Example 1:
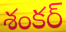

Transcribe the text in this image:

శంకర్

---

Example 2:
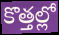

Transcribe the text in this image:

కొత్తల్లో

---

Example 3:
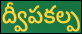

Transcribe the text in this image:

ద్వీపకల్ప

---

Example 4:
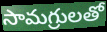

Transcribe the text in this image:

సామగ్రులతో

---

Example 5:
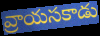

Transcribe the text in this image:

వ్రాయసకాడు